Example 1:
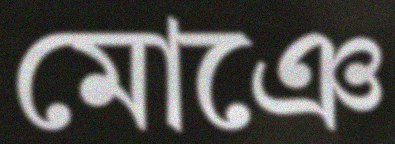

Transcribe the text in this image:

মোঞে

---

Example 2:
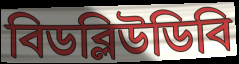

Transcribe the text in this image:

বিডব্লিউডিবি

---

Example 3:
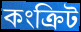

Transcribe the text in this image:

কংক্রিট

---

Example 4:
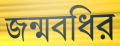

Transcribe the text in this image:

জন্মবধির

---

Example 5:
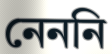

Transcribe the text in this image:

নেননি